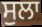
ਸੁਲਾ